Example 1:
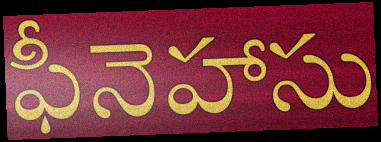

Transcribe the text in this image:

ఫీనెహాసు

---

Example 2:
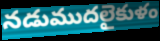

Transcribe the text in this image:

నడుముదలైకుళం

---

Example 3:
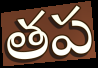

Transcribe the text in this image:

తప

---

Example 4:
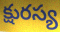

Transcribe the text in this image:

క్షురస్య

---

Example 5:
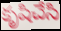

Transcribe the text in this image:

కృషిచేసి